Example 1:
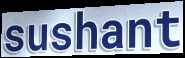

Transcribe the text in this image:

sushant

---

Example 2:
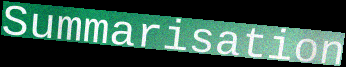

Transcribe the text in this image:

Summarisation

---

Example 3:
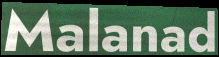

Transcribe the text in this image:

Malanad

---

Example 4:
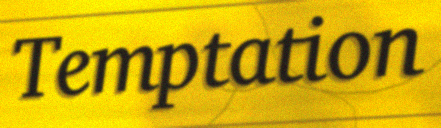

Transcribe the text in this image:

Temptation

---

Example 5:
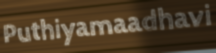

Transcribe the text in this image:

Puthiyamaadhavi